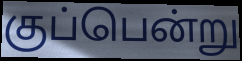
குப்பென்று